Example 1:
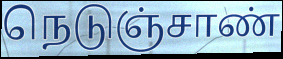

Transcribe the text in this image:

நெடுஞ்சாண்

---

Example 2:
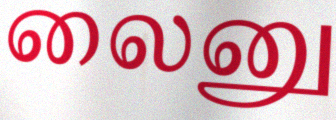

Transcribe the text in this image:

லைனு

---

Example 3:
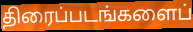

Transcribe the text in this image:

திரைப்படங்களைப்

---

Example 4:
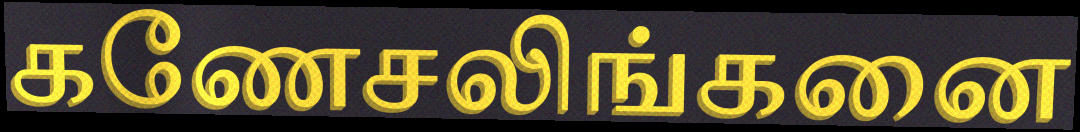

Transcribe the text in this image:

கணேசலிங்கனை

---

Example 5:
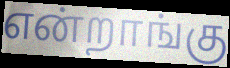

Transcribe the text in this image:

என்றாங்கு